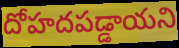
దోహదపడ్డాయని